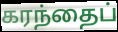
கரந்தைப்